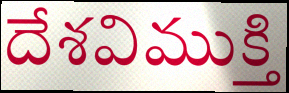
దేశవిముక్తి